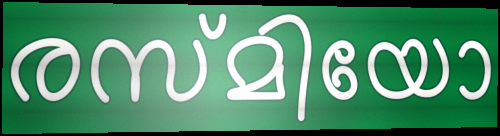
രസ്മിയോ